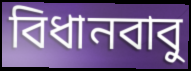
বিধানবাবু